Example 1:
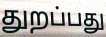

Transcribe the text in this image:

துறப்பது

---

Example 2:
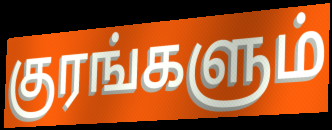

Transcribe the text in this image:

குரங்களும்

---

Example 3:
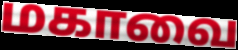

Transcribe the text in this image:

மகாவை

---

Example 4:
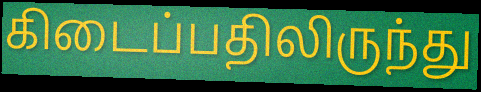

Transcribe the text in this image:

கிடைப்பதிலிருந்து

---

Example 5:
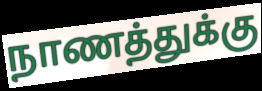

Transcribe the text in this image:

நாணத்துக்கு